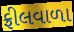
ફ્રીલવાળા